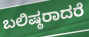
ಬಲಿಷ್ಠರಾದರೆ